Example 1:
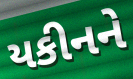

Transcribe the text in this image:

યકીનને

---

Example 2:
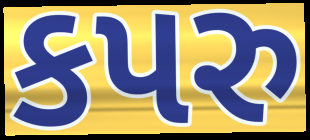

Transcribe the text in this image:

કપરુ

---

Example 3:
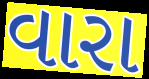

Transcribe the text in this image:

વારા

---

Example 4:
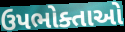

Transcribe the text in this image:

ઉપભોક્તાઓ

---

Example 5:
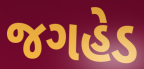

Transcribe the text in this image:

જગહેડ